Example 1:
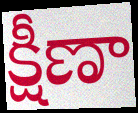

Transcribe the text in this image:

క్షీణా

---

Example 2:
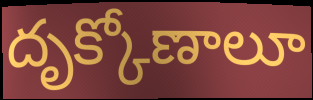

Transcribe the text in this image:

దృక్కోణాలూ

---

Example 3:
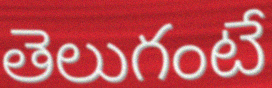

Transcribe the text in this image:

తెలుగంటే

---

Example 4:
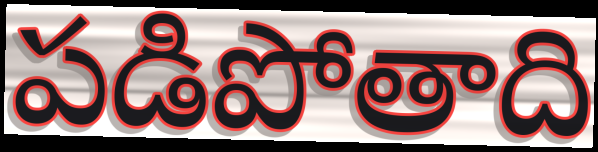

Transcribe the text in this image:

పడిపోతాది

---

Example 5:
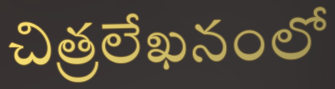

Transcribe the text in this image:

చిత్రలేఖనంలో